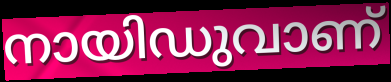
നായിഡുവാണ്